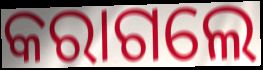
କରାଗଲେ